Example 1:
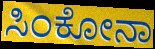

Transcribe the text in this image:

ಸಿಂಕೋನಾ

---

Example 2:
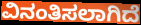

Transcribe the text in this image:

ವಿನಂತಿಸಲಾಗಿದೆ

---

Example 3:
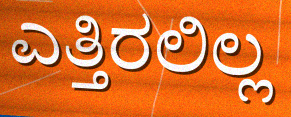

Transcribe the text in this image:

ಎತ್ತಿರಲಿಲ್ಲ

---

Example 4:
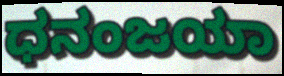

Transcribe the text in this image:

ಧನಂಜಯಾ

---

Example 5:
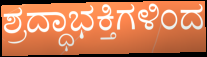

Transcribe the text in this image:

ಶ್ರದ್ಧಾಭಕ್ತಿಗಳಿಂದ